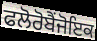
ਫਲੋਰੋਬੈਂਜੋਇਕ